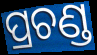
ପ୍ରଚଣ୍ଡ